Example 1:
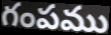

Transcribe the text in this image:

గంపము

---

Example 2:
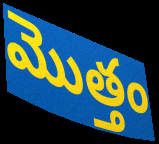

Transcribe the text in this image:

మొత్తం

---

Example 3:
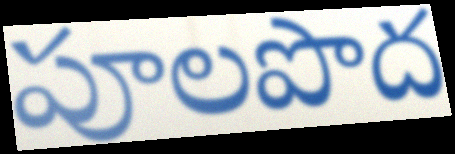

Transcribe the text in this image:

పూలపొద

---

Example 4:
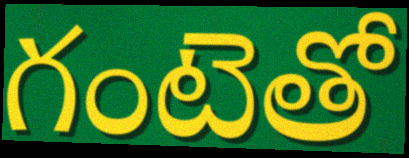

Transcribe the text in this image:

గంటెతో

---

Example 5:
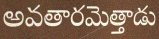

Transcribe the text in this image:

అవతారమెత్తాడు